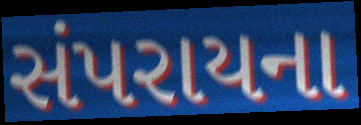
સંપરાયના